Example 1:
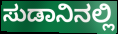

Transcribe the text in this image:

ಸುಡಾನಿನಲ್ಲಿ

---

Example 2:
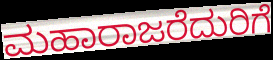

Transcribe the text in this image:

ಮಹಾರಾಜರೆದುರಿಗೆ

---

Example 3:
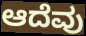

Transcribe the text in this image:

ಆದೆವು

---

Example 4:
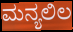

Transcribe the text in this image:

ಮನ್ಯಲಿಲ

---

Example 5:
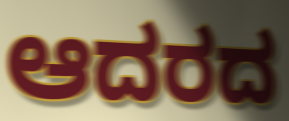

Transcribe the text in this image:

ಆದರದ